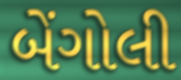
બેંગોલી